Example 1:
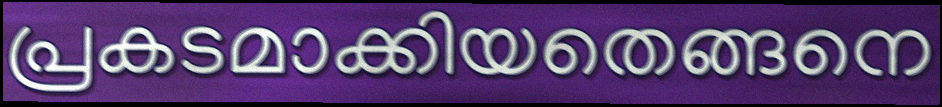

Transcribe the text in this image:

പ്രകടമാക്കിയതെങ്ങനെ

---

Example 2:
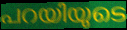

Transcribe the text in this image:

പറയിയുടെ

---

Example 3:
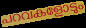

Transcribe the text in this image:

പറവകളോടും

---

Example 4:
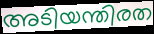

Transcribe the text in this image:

അടിയന്തിരത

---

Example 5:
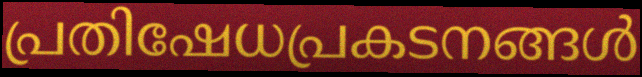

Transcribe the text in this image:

പ്രതിഷേധപ്രകടനങ്ങൾ